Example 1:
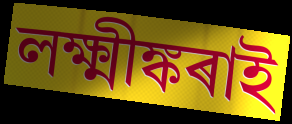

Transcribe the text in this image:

লক্ষ্মীঙ্কৰাই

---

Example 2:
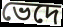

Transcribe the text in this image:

ভেদে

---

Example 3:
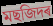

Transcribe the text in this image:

মছজিদৰ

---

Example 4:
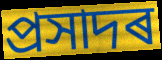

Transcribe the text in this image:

প্ৰসাদৰ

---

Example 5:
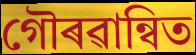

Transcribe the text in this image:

গৌৰৱান্বিত